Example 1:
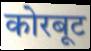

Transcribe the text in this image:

कोरबूट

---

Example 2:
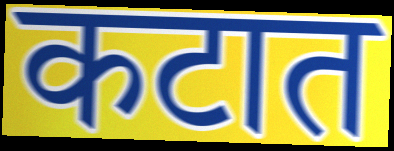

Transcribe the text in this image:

कटात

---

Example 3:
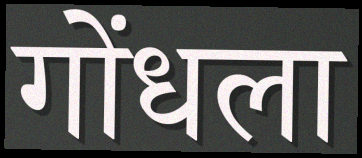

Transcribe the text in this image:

गोंधला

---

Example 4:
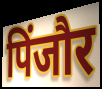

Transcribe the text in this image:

पिंजौर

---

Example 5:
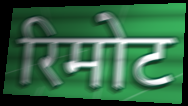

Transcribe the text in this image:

रिमोट